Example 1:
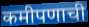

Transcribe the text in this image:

कमीपणाची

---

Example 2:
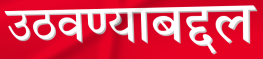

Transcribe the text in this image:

उठवण्याबद्दल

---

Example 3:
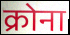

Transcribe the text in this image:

क्रोना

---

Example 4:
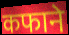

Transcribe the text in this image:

कफाने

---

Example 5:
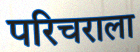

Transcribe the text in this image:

परिचराला